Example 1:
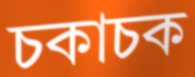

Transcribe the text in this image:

চকাচক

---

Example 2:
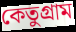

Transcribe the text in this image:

কেতুগ্রাম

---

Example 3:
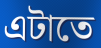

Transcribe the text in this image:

এটাতে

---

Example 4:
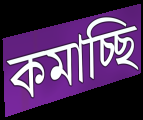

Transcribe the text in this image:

কমাচ্ছি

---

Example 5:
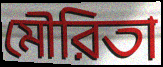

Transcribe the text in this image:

মৌরিতা